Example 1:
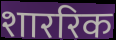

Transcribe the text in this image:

शाररिक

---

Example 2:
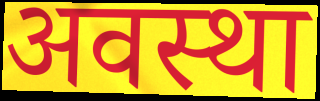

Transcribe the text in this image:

अवस्था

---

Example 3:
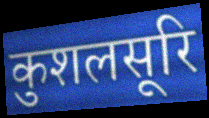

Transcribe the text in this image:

कुशलसूरि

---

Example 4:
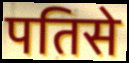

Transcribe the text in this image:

पतिसे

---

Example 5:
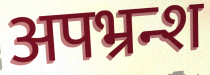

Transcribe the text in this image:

अपभ्रन्श